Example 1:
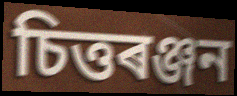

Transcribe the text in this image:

চিত্তৰঞ্জন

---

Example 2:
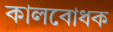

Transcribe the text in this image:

কালবোধক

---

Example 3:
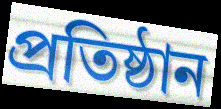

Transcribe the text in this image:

প্ৰতিষ্ঠান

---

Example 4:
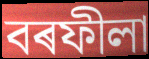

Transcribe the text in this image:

বৰফীলা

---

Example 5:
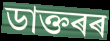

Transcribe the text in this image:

ডাক্তৰৰ